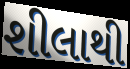
શીલાથી